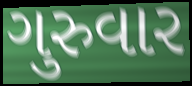
ગુરુવાર